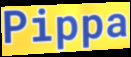
Pippa